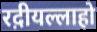
रद़ीयल्लाहो